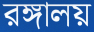
রঙ্গালয়